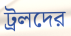
ট্রলদের